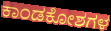
ಕಾಂಡಕೋಶಗಳ